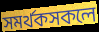
সমৰ্থকসকলে